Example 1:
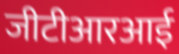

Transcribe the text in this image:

जीटीआरआई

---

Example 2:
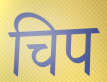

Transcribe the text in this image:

चिप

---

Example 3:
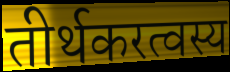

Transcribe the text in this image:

तीर्थकरत्वस्य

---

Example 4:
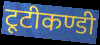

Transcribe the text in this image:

टूटीकण्डी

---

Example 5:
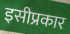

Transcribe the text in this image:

इसीप्रकार